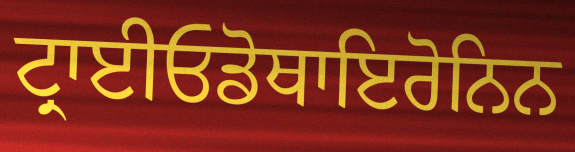
ਟ੍ਰਾਈਓਡੋਥਾਇਰੋਨਿਨ